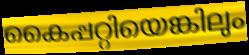
കൈപ്പറ്റിയെങ്കിലും